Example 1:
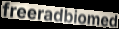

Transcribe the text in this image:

freeradbiomed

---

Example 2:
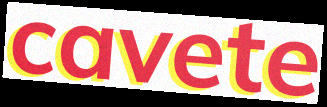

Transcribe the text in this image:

cavete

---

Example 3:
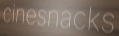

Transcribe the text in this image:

cinesnacks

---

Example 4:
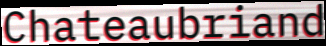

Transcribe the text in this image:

Chateaubriand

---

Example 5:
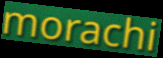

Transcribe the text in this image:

morachi